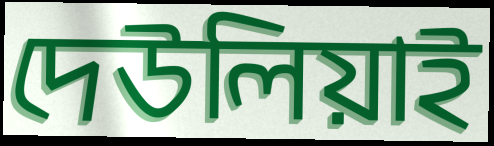
দেউলিয়াই